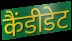
कैंडीडेट